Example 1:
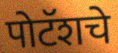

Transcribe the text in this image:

पोटॅशचे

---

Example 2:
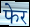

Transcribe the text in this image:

फेर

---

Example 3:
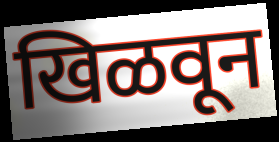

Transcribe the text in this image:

खिळवून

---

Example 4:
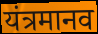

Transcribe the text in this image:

यंत्रमानव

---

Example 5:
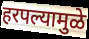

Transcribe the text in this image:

हरपल्यामुळे